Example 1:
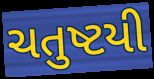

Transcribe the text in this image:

ચતુષ્ટયી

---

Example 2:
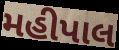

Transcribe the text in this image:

મહીપાલ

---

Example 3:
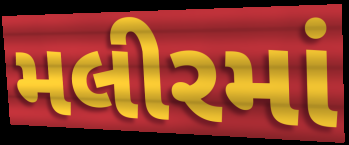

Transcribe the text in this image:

મલીરમાં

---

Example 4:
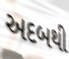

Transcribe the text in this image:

અદબથી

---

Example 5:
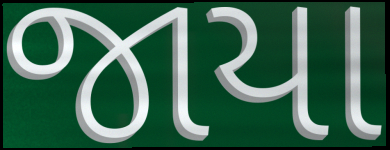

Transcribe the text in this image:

જાયા